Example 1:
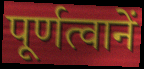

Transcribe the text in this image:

पूर्णत्वानें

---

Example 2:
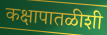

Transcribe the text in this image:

कक्षापातळीशी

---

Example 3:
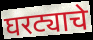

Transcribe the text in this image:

घरट्याचे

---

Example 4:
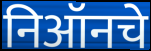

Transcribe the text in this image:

निऑनचे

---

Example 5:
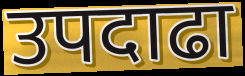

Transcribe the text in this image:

उपदाढा